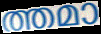
ത്തമാ